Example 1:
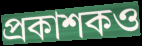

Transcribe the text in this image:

প্রকাশকও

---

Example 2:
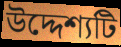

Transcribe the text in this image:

উদ্দেশ্যটি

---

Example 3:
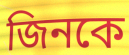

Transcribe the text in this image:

জিনকে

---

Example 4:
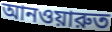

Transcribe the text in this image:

আনওয়ারুত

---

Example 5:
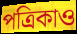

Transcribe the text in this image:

পত্রিকাও